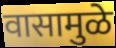
वासामुळे